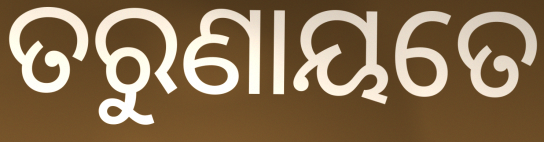
ତରୁଣାୟତେ